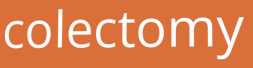
colectomy